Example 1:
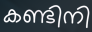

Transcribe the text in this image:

കണ്ടിനി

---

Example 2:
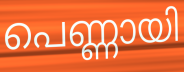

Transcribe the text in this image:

പെണ്ണായി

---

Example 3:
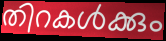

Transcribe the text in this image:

തിറകൾക്കും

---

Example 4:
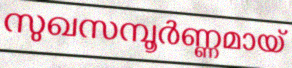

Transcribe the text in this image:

സുഖസമ്പൂർണ്ണമായ്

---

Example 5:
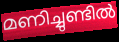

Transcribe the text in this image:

മണിച്ചുണ്ടിൽ